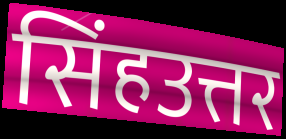
सिंहउत्तर